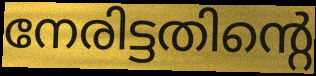
നേരിട്ടതിന്റെ